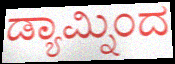
ಡ್ಯಾಮ್ನಿಂದ